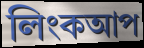
লিংকআপ